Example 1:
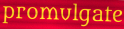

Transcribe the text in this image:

promulgate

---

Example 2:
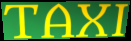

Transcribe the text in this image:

TAXI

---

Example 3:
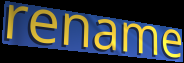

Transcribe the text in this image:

rename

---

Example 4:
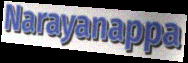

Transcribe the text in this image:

Narayanappa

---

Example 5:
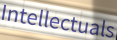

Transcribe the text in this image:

Intellectuals